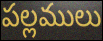
పల్లములు